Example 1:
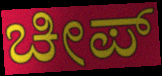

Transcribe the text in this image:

ಚೀಪ್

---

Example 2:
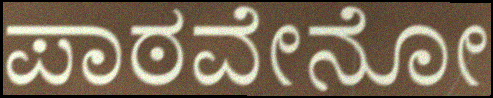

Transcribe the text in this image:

ಪಾಠವೇನೋ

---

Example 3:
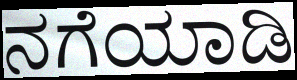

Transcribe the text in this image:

ನಗೆಯಾಡಿ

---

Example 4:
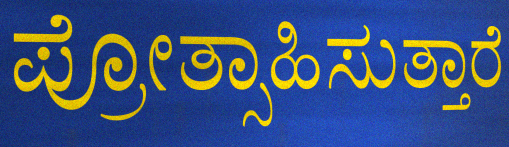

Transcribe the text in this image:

ಪ್ರೋತ್ಸಾಹಿಸುತ್ತಾರೆ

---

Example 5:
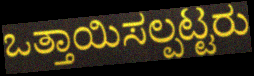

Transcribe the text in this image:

ಒತ್ತಾಯಿಸಲ್ಪಟ್ಟರು